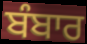
ਬੰਬਾਰ